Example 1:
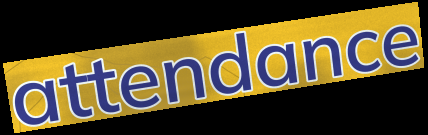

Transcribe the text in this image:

attendance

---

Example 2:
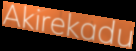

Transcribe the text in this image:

Akirekadu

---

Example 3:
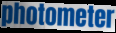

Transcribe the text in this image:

photometer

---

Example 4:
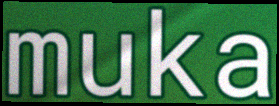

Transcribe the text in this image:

muka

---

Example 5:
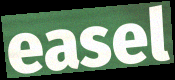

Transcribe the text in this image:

easel